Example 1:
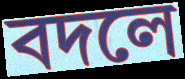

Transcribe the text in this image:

বদলে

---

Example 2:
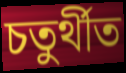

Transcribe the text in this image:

চতুৰ্থীত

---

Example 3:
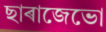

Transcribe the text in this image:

ছাৰাজেভো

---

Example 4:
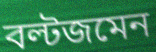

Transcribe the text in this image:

বল্টজমেন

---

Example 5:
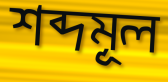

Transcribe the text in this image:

শব্দমূল